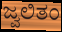
ಜ್ವಲಿತಂ